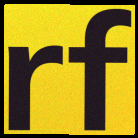
rf